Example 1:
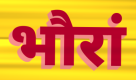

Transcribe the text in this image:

भौरां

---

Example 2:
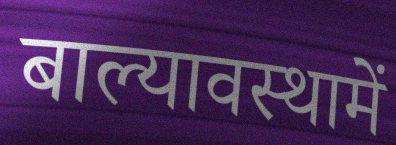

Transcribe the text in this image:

बाल्यावस्थामें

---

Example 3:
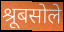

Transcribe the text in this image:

श्रूबसोले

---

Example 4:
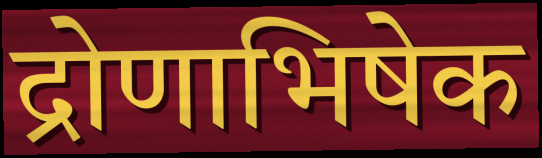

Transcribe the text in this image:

द्रोणाभिषेक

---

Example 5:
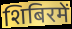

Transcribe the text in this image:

शिबिरमें